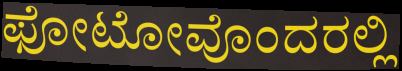
ಫೋಟೋವೊಂದರಲ್ಲಿ